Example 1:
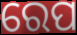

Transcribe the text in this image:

ରେପ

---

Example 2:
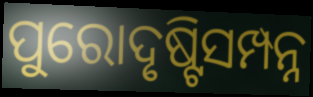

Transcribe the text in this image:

ପୁରୋଦୃଷ୍ଟିସମ୍ପନ୍ନ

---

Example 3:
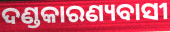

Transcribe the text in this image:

ଦଣ୍ଡକାରଣ୍ୟବାସୀ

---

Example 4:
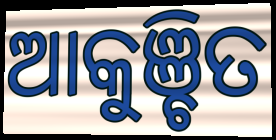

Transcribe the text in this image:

ଆକୁଞ୍ଚିତ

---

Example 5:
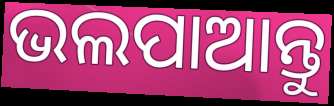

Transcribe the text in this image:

ଭଲପାଆନ୍ତୁ